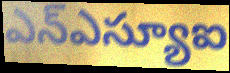
ఎన్ఎస్యూఐ